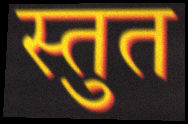
स्तुत